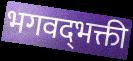
भगवद्‌भक्ती